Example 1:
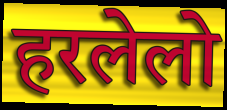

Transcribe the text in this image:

हरलेलो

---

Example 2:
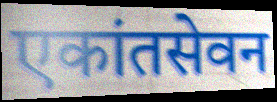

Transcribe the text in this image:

एकांतसेवन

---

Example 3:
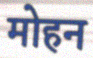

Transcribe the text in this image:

मोहन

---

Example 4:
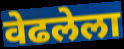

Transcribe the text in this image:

वेढलेला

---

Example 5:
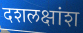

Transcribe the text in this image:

दशलक्षांश